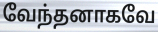
வேந்தனாகவே